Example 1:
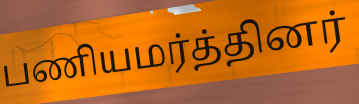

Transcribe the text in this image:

பணியமர்த்தினர்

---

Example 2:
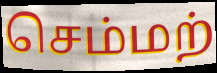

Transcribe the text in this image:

செம்மற்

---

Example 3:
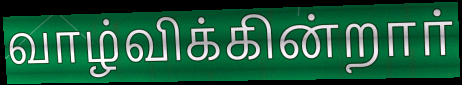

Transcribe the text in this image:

வாழ்விக்கின்றார்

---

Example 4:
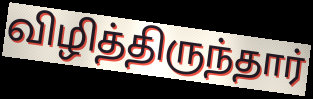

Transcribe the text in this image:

விழித்திருந்தார்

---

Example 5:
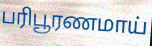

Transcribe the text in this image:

பரிபூரணமாய்